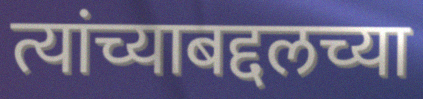
त्यांच्याबद्दलच्या